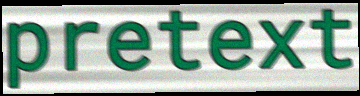
pretext